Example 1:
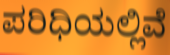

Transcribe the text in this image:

ಪರಿಧಿಯಲ್ಲಿವೆ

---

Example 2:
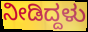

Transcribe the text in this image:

ನೀಡಿದ್ದಳು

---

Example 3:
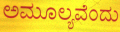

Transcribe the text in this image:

ಅಮೂಲ್ಯವೆಂದು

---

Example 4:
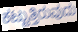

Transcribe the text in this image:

ಕಟ್ಟುತ್ತಿರುವುದು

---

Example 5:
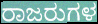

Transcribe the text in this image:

ರಾಜರುಗಳ